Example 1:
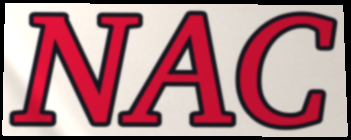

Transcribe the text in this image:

NAC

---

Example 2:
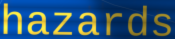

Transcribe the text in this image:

hazards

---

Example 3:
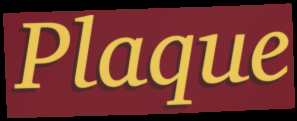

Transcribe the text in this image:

Plaque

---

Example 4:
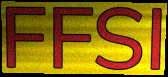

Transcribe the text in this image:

FFSI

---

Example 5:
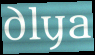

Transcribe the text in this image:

dlya